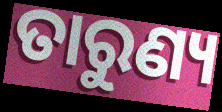
ତାରୁଣ୍ୟ